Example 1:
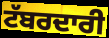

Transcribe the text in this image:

ਟੱਬਰਦਾਰੀ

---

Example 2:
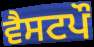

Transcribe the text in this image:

ਵੈਸਟਪੌ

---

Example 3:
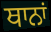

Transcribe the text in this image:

ਥਾਨਾਂ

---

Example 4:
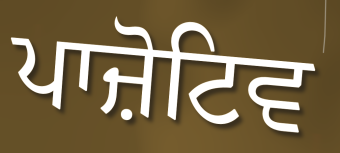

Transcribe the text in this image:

ਪਾਜ਼ੋਟਿਵ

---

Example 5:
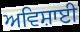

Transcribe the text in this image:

ਅਵਿਸ਼ਾਈ